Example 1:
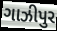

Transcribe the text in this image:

ગાઝીપુર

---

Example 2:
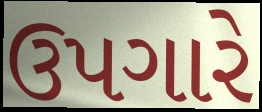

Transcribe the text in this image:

ઉપગારે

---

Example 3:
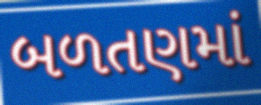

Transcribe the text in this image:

બળતણમાં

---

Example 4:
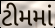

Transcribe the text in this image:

ટીમમાં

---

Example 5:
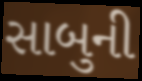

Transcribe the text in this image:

સાબુની